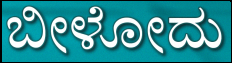
ಬೀಳೋದು